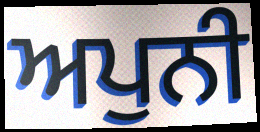
ਅਪੁਨੀ